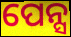
ପେନ୍ସ